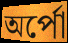
অর্পো